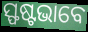
ସ୍ଫଷ୍ଟଭାବେ